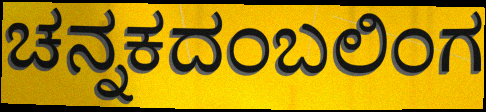
ಚನ್ನಕದಂಬಲಿಂಗ